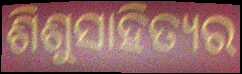
ଶିଶୁସାହିତ୍ୟର